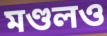
মণ্ডলও